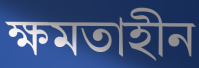
ক্ষমতাহীন